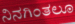
ನಿನಗಿಂತಲೂ